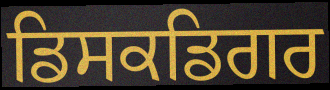
ਡਿਸਕਡਿਗਰ